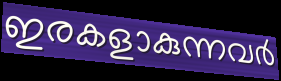
ഇരകളാകുന്നവർ